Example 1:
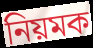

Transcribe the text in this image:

নিয়মক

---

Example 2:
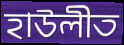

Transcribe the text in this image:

হাউলীত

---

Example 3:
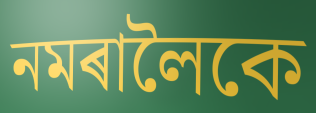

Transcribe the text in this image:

নমৰালৈকে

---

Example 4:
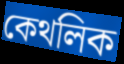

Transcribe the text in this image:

কেথলিক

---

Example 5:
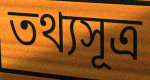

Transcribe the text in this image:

তথ্যসূত্ৰ